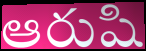
ఆరుషి